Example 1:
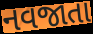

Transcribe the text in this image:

નવજાતા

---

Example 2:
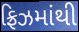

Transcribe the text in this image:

ફ્રિઝમાંથી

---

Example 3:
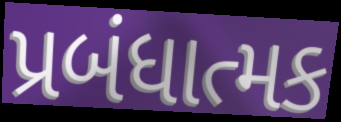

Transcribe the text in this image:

પ્રબંધાત્મક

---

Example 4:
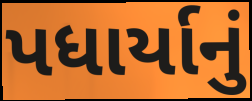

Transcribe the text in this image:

પધાર્યાનું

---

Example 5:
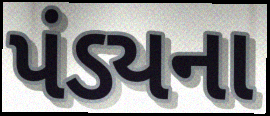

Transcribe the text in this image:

પંડ્યના